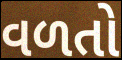
વળતો